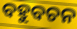
ବହୁବଚନ